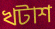
খটাশ